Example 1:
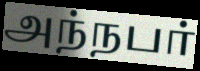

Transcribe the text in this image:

அந்நபர்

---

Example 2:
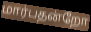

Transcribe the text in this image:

மார்பதன்றோ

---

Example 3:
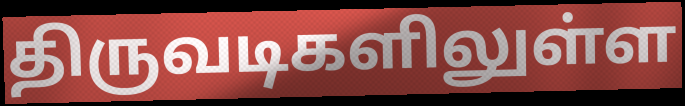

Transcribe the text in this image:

திருவடிகளிலுள்ள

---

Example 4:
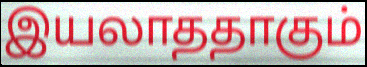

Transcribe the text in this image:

இயலாததாகும்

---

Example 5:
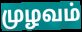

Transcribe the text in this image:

முழவம்